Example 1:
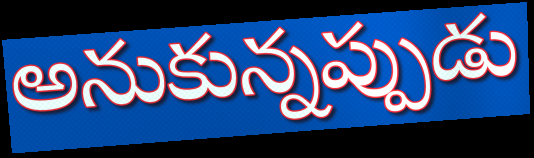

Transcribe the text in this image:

అనుకున్నప్పుడు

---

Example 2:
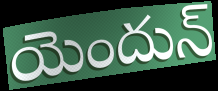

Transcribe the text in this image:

యెందున్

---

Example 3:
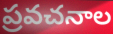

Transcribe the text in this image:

ప్రవచనాల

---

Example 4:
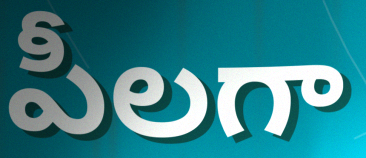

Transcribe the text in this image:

పీలగా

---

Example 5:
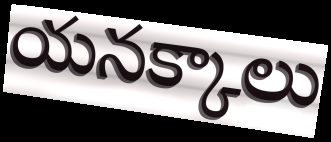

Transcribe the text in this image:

యనక్కాలు